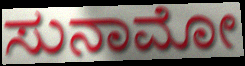
ಸುನಾಮೋ